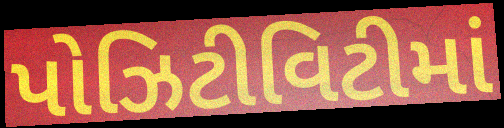
પોઝિટીવિટીમાં